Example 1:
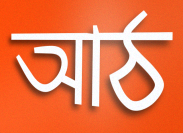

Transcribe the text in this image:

আঠ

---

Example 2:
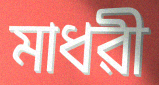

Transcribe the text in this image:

মাধৱী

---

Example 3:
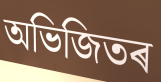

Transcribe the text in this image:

অভিজিতৰ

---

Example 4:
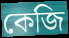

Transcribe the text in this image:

কেজি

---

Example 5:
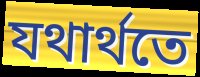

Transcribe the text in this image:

যথাৰ্থতে